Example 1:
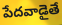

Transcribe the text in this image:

పేదవాడైతే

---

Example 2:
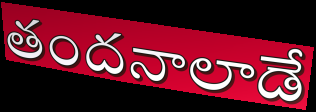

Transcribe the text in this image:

తందనాలాడే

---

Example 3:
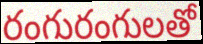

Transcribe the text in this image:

రంగురంగులతో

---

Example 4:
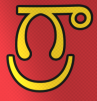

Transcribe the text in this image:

గ్రా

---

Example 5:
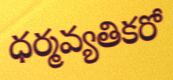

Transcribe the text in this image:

ధర్మవ్యతికరో